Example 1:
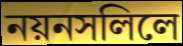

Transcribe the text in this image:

নয়নসলিলে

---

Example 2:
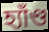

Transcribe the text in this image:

হ্যাঁণ্ড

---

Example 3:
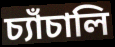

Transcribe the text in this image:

চ্যাঁচালি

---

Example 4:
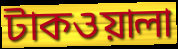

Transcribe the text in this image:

টাকওয়ালা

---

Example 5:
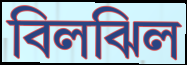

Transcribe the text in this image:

বিলঝিল